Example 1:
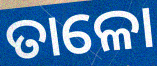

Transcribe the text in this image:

ତାଳୋ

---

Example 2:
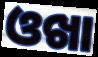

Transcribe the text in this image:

ଓଖା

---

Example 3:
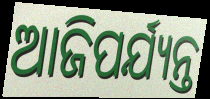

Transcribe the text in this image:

ଆଜିପର୍ଯ୍ୟନ୍ତ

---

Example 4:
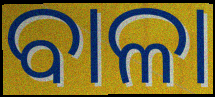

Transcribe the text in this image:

ବାଳା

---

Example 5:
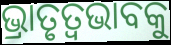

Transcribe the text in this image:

ଭ୍ରାତୃତ୍ୱଭାବକୁ